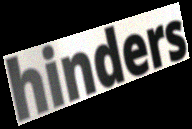
hinders